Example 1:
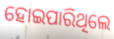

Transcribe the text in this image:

ହୋଇପାରିଥିଲେ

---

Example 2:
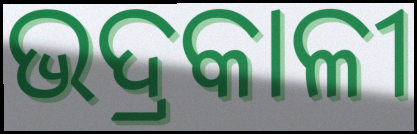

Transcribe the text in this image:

ଭଦ୍ରକାଳୀ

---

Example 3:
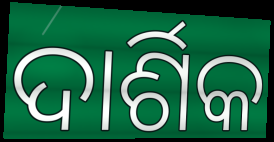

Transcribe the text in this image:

ଦାର୍ଶିକ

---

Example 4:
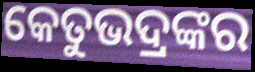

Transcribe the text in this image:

କେତୁଭଦ୍ରଙ୍କର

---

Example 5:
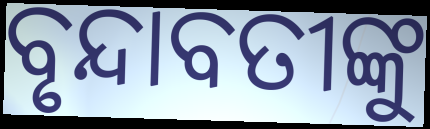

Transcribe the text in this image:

ବୃନ୍ଦାବତୀଙ୍କୁ